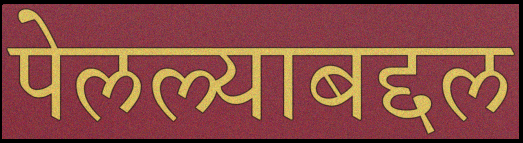
पेलल्याबद्दल